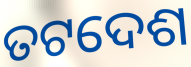
ତଟଦେଶ